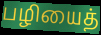
பழியைத்